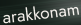
arakkonam